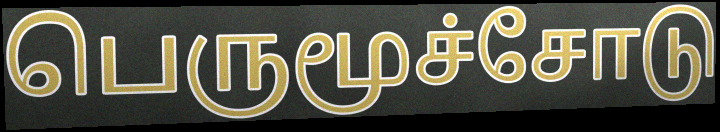
பெருமூச்சோடு